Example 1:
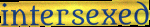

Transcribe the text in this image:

intersexed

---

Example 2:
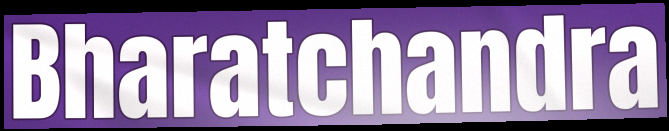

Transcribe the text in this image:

Bharatchandra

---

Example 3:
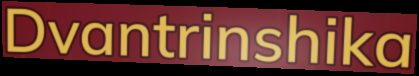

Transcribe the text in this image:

Dvantrinshika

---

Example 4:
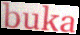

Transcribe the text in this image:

buka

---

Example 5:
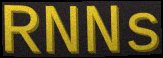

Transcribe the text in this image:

RNNs